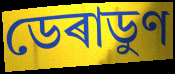
ডেৰাডুণ